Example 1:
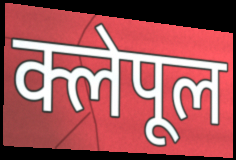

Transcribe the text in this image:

क्लेपूल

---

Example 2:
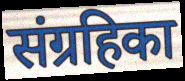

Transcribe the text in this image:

संग्रहिका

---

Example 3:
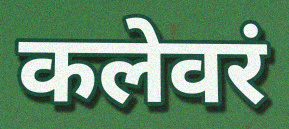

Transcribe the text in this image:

कलेवरं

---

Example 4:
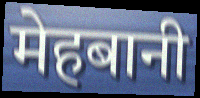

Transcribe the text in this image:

मेहबानी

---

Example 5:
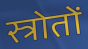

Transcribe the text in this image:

स्त्रोतों